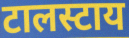
टालस्टाय